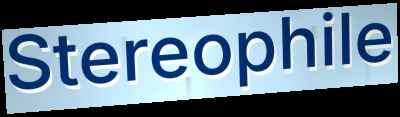
Stereophile